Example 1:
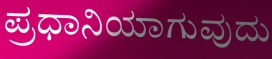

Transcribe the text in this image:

ಪ್ರಧಾನಿಯಾಗುವುದು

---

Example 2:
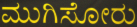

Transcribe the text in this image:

ಮುಗಿಸೋರು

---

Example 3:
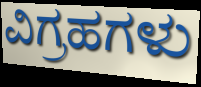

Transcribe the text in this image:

ವಿಗ್ರಹಗಳು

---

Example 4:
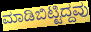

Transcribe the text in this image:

ಮಾಡಿಬಿಟ್ಟಿದ್ದವು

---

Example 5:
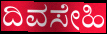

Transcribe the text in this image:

ದಿವಸೇಹಿ